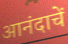
आनंदाचें